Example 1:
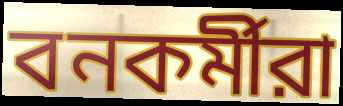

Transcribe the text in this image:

বনকর্মীরা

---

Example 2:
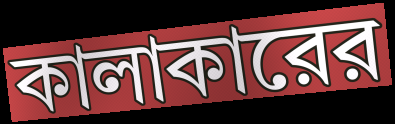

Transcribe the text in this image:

কালাকারের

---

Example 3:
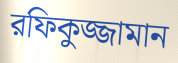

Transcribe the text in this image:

রফিকুজ্জামান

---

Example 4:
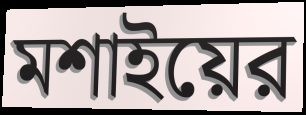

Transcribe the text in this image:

মশাইয়ের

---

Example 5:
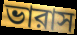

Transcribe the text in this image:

ভারাস